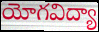
యోగవిద్యా